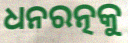
ଧନରତ୍ନକୁ